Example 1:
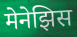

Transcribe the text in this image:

मेनेझिस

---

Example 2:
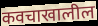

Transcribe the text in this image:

कवचाखालील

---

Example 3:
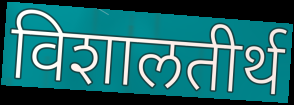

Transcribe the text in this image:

विशालतीर्थ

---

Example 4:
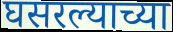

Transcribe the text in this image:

घसरल्याच्या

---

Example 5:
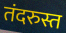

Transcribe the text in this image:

तंदरुस्त